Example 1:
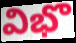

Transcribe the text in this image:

విభొ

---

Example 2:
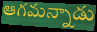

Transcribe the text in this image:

ఆగమన్నాడు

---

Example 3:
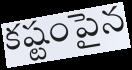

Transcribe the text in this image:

కష్టంపైన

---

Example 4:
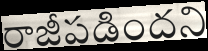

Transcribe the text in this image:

రాజీపడిందని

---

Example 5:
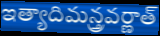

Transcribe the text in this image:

ఇత్యాదిమన్త్రవర్ణాత్